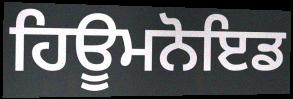
ਹਿਊਮਨੋਇਡ